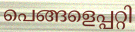
പെങ്ങളെപ്പറ്റി